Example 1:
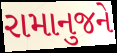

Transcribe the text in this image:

રામાનુજને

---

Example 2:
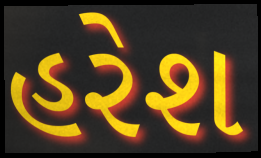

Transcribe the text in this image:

હરેશ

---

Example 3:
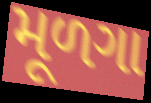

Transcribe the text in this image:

મૂળગા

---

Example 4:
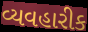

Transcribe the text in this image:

વ્યવહારીક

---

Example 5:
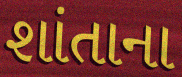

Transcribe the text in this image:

શાંતાના